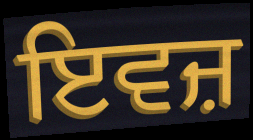
ਇਵਜ਼